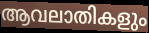
ആവലാതികളും